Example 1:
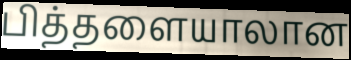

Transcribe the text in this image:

பித்தளையாலான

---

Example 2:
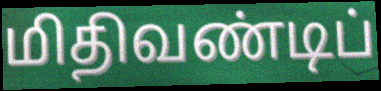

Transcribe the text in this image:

மிதிவண்டிப்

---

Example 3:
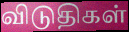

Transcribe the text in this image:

விடுதிகள்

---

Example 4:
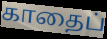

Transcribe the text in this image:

காதைப்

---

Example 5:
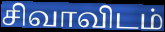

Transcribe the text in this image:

சிவாவிடம்